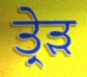
ਤ੍ਰੇੜ